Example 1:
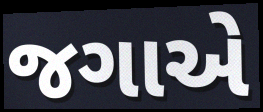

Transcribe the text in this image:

જગાએ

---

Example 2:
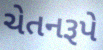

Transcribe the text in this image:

ચેતનરૂપે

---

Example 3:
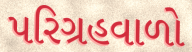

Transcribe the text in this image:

પરિગ્રહવાળો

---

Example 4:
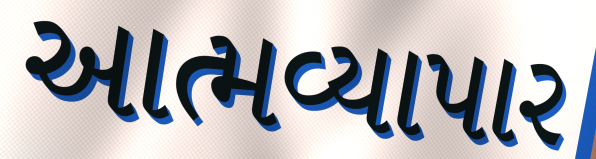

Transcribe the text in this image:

આત્મવ્યાપાર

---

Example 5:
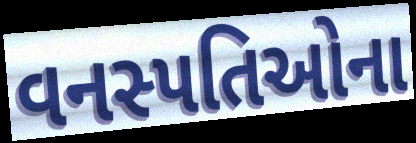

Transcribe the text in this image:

વનસ્પતિઓના